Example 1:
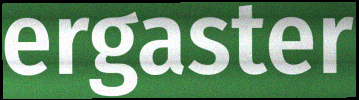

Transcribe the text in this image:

ergaster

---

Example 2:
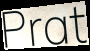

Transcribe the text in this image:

Prat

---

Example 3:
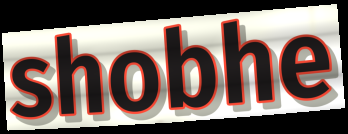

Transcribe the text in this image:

shobhe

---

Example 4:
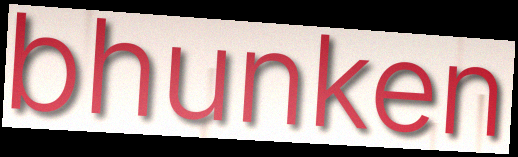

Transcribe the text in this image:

bhunken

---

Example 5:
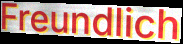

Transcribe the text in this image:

Freundlich